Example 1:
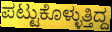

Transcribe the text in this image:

ಪಟ್ಟುಕೊಳ್ಳುತ್ತಿದ್ದ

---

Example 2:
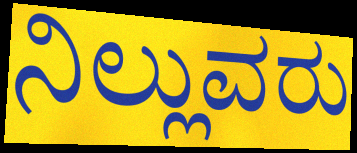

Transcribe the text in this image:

ನಿಲ್ಲುವರು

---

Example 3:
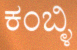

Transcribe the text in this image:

ಕಂಬ್ಳಿ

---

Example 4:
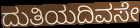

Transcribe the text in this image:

ದುತಿಯದಿವಸೇ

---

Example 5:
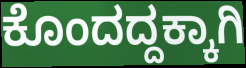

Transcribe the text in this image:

ಕೊಂದದ್ದಕ್ಕಾಗಿ